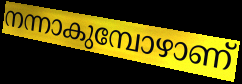
നന്നാകുമ്പോഴാണ്